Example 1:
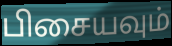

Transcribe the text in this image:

பிசையவும்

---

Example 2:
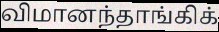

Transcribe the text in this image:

விமானந்தாங்கிக்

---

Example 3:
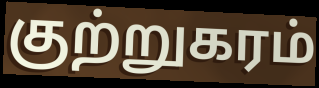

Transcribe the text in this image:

குற்றுகரம்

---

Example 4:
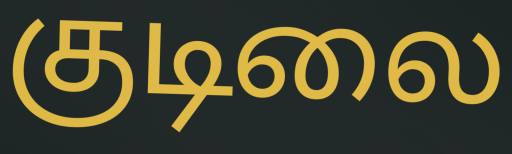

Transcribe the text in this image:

குடிலை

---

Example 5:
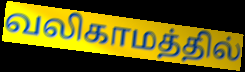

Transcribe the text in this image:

வலிகாமத்தில்